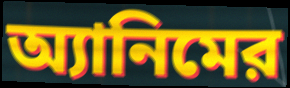
অ্যানিমের